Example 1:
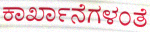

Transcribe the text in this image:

ಕಾರ್ಖಾನೆಗಳಂತೆ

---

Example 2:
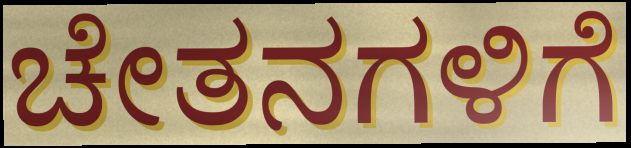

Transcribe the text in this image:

ಚೇತನಗಳಿಗೆ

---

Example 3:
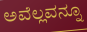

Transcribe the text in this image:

ಅವೆಲ್ಲವನ್ನೂ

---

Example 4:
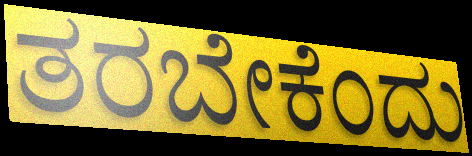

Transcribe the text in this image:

ತರಬೇಕೆಂದು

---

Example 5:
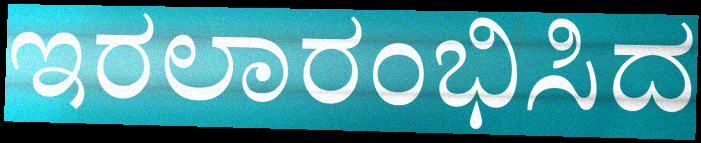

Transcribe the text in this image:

ಇರಲಾರಂಭಿಸಿದ